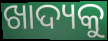
ଖାଦ୍ୟକୁ